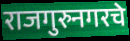
राजगुरुनगरचे